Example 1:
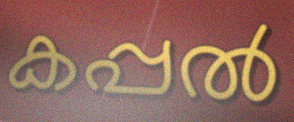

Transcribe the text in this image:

കപ്പൽ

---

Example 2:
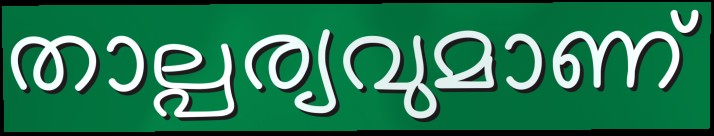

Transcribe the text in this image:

താല്പര്യവുമാണ്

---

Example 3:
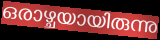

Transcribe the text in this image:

ഒരാഴ്ചയായിരുന്നു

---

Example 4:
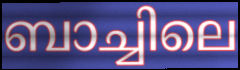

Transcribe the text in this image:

ബാച്ചിലെ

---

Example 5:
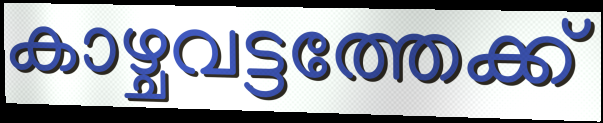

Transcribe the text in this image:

കാഴ്ചവട്ടത്തേക്ക്